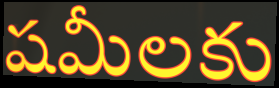
షమీలకు